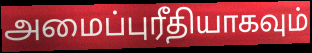
அமைப்புரீதியாகவும்